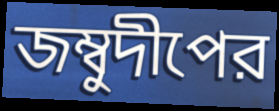
জম্বুদীপের